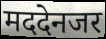
मददेनजर